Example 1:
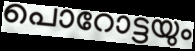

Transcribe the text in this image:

പൊറോട്ടയും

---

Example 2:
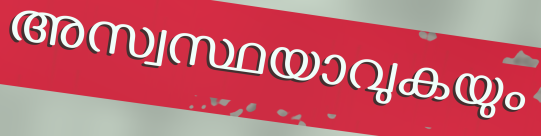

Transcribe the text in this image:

അസ്വസ്ഥയാവുകയും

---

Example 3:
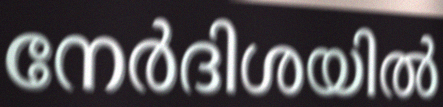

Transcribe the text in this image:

നേർദിശയിൽ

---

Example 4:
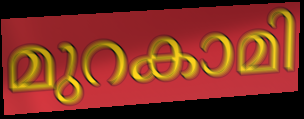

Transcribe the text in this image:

മുറകാമി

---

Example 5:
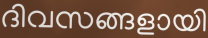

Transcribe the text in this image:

ദിവസങ്ങളായി